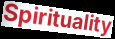
Spirituality